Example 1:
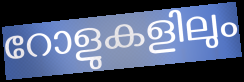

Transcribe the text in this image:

റോളുകളിലും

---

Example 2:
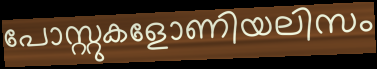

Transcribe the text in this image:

പോസ്റ്റുകളോണിയലിസം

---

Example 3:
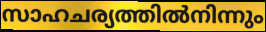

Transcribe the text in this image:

സാഹചര്യത്തിൽനിന്നും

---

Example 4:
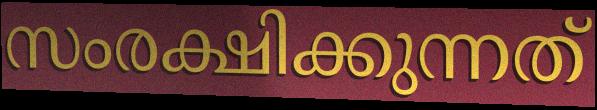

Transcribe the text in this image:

സംരക്ഷിക്കുന്നത്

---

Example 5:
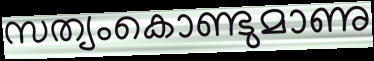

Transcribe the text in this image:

സത്യംകൊണ്ടുമാണു